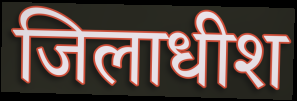
जिलाधीश